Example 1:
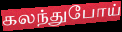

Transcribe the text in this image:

கலந்துபோய்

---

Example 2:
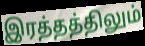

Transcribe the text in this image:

இரத்தத்திலும்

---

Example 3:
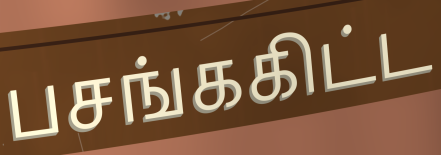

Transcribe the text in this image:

பசங்ககிட்ட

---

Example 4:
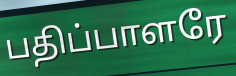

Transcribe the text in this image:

பதிப்பாளரே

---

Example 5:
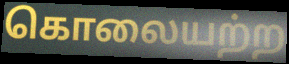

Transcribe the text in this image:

கொலையற்ற